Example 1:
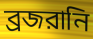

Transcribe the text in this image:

ব্রজরানি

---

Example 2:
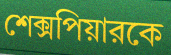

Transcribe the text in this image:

শেক্সপিয়ারকে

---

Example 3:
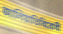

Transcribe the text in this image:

জালিয়াতিবিরোধী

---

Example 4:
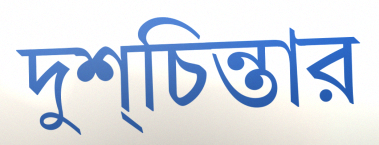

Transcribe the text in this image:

দুশ্‌চিন্তার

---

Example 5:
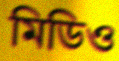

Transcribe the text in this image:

মিডিও